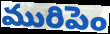
మురిపెం